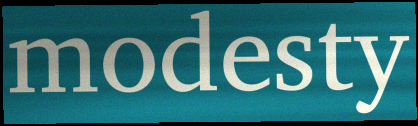
modesty